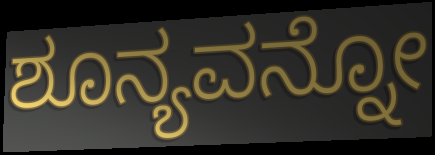
ಶೂನ್ಯವನ್ನೋ